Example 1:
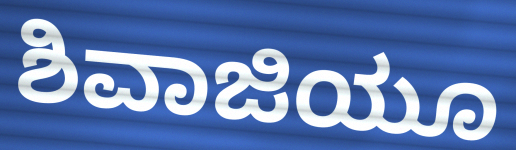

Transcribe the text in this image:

ಶಿವಾಜಿಯೂ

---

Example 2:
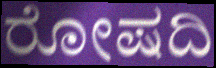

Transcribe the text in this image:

ರೋಷದಿ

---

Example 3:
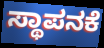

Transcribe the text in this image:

ಸ್ಥಾಪನಕೆ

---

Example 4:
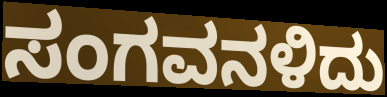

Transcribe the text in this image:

ಸಂಗವನಳಿದು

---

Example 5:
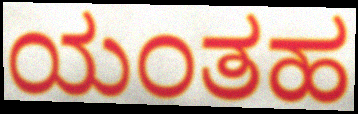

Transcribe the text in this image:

ಯಂತಹ